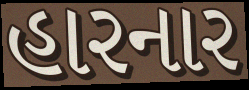
હારનાર